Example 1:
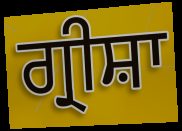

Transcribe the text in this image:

ਗ੍ਰੀਸ਼ਾ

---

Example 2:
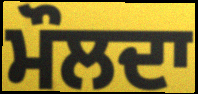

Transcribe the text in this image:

ਮੌਲਦਾ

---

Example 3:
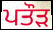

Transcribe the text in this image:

ਪਤੌੜ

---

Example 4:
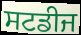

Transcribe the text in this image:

ਸਟਡੀਜ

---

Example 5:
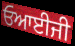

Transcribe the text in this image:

ਓਆਈਜੀ